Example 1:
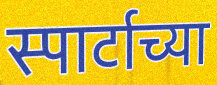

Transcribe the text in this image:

स्पार्टाच्या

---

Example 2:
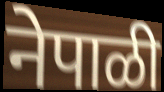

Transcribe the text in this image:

नेपाळी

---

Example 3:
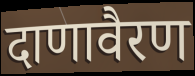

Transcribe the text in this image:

दाणावैरण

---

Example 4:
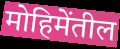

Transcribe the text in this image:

मोहिमेंतील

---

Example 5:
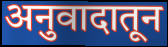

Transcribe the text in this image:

अनुवादातून